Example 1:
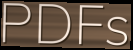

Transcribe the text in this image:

PDFs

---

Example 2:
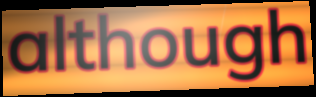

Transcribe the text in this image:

although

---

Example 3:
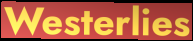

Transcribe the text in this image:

Westerlies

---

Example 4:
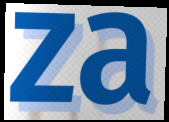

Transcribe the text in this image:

za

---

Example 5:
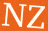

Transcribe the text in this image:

NZ